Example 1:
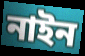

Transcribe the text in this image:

নাইন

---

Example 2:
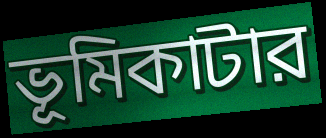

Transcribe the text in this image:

ভূমিকাটার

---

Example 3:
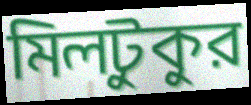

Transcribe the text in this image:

মিলটুকুর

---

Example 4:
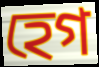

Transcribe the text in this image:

হেগ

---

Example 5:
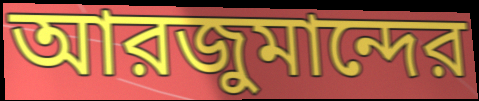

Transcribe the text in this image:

আরজুমান্দের